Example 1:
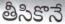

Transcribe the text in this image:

తీసికొనే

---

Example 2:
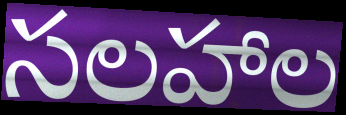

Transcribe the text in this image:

సలహాల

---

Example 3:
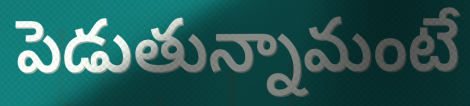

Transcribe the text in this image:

పెడుతున్నామంటే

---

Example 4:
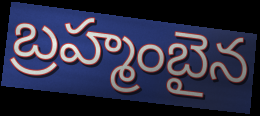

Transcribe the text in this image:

బ్రహ్మంబైన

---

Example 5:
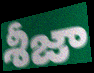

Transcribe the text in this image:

శీజా